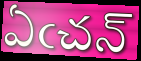
ఏఁచన్